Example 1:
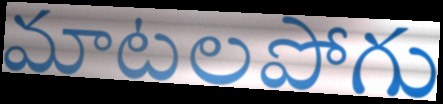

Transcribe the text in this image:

మాటలపోగు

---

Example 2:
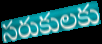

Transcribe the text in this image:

సరుకులకు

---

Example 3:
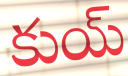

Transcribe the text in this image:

కుయ్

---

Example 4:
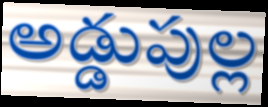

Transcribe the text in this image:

అడ్డుపుల్ల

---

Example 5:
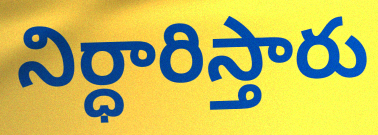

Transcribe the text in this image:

నిర్ధారిస్తారు